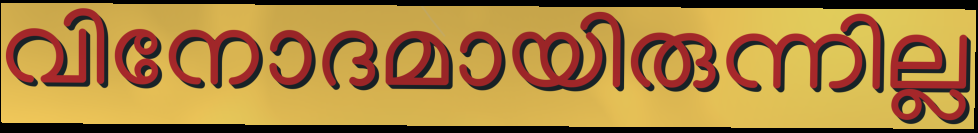
വിനോദമായിരുന്നില്ല